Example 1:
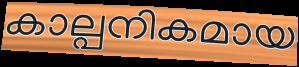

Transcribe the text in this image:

കാല്പനികമായ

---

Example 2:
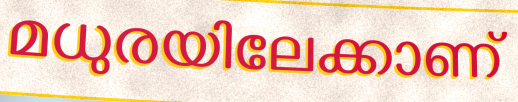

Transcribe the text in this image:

മധുരയിലേക്കാണ്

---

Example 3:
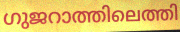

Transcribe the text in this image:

ഗുജറാത്തിലെത്തി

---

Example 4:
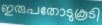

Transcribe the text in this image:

ഇരുപതോടുകൂടി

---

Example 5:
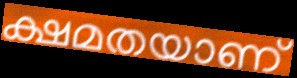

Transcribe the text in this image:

ക്ഷമതയാണ്